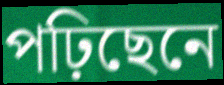
পঢ়িছেনে